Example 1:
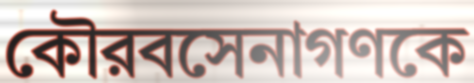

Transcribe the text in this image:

কৌরবসেনাগণকে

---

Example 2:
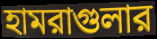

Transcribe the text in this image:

হামরাগুলার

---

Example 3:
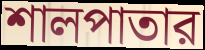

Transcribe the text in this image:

শালপাতার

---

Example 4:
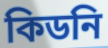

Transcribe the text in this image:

কিডনি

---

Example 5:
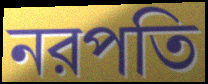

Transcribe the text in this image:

নরপতি